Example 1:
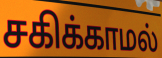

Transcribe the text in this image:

சகிக்காமல்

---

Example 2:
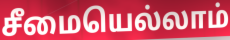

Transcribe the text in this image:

சீமையெல்லாம்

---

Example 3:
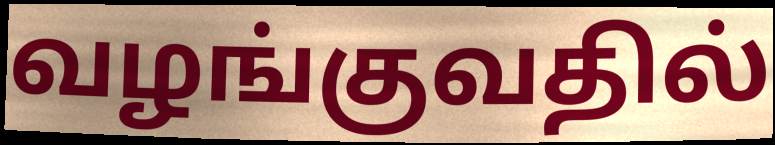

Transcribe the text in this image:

வழங்குவதில்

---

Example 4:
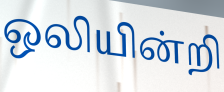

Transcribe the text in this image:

ஒலியின்றி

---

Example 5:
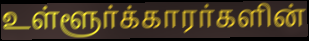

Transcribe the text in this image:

உள்ளூர்க்காரர்களின்